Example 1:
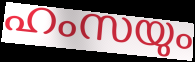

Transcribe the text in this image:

ഹംസയും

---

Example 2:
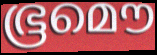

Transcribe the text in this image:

ഭൂമൌ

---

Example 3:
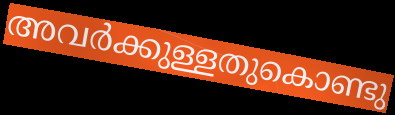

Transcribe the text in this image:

അവർക്കുള്ളതുകൊണ്ടു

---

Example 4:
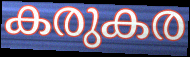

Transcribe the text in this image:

കരുകര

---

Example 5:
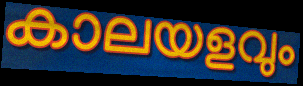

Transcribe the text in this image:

കാലയളവും